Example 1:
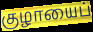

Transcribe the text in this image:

குழாயைப்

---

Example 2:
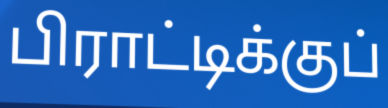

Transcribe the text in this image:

பிராட்டிக்குப்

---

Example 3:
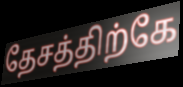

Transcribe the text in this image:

தேசத்திற்கே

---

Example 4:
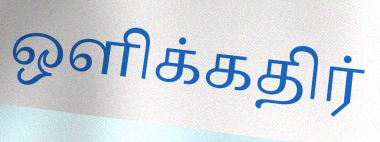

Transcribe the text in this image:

ஒளிக்கதிர்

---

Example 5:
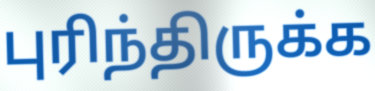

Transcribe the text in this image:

புரிந்திருக்க